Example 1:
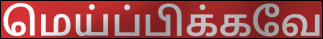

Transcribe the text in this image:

மெய்ப்பிக்கவே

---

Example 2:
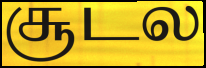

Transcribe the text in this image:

சூடல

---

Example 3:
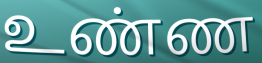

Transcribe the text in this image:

உண்ண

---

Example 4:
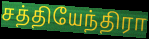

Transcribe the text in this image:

சத்தியேந்திரா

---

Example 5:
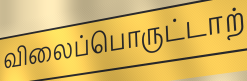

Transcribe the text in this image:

விலைப்பொருட்டாற்